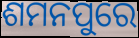
ଶମନପୁରେ